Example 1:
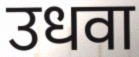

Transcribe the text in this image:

उधवा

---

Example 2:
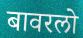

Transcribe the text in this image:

बावरलो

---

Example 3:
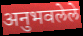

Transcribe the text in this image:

अनुभवलेले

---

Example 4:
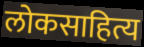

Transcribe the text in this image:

लोकसाहित्य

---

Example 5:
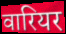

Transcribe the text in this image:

वारियर